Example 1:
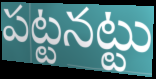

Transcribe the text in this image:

పట్టనట్టు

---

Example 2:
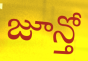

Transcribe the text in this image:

జూన్తో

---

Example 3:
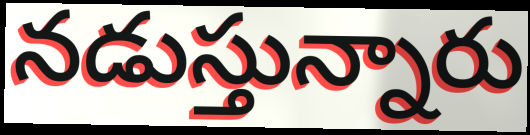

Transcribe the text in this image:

నడుస్తున్నారు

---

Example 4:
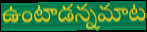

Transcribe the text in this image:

ఉంటాడన్నమాట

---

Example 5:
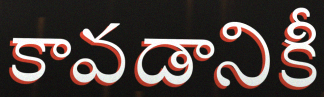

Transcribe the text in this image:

కావడానికీ